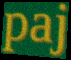
paj